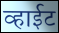
व्हाईट